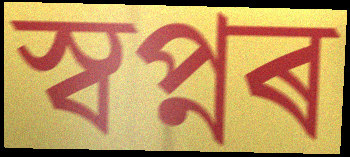
স্বপ্নৰ